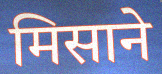
मिसाने